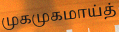
முகமுகமாய்த்